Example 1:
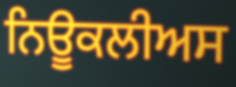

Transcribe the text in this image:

ਨਿਊਕਲੀਅਸ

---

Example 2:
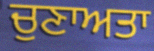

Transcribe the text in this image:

ਚੁਣਾਅਤਾ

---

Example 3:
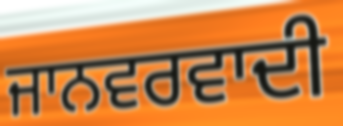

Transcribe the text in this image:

ਜਾਨਵਰਵਾਦੀ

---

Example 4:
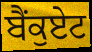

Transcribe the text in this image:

ਬੈਂਕੁਏਟ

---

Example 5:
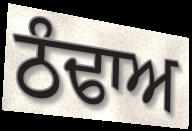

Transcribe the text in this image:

ਠੰਢਾਅ